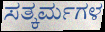
ಸತ್ಕರ್ಮಗಳ